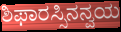
ಶಿಫಾರಸ್ಸಿನನ್ವಯ